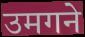
उमगने